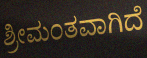
ಶ್ರೀಮಂತವಾಗಿದೆ